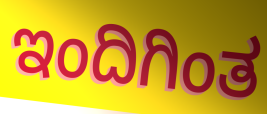
ಇಂದಿಗಿಂತ